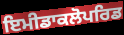
ਇਮੀਡਾਕਲੋਪਰਿਡ